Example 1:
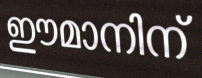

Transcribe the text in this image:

ഈമാനിന്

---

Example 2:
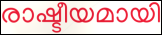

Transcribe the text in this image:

രാഷ്ടീയമായി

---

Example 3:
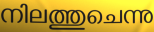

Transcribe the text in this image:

നിലത്തുചെന്നു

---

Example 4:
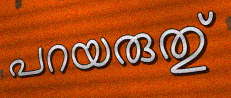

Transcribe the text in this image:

പറയരുതു്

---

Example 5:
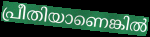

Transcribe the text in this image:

പ്രീതിയാണെങ്കിൽ